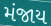
મંજાય